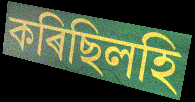
কৰিছিলহি